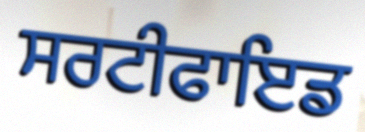
ਸਰਟੀਫਾਇਡ